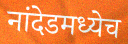
नांदेडमध्येच